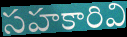
సహకారివి